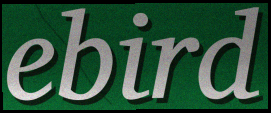
ebird